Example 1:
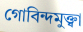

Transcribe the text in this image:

গোবিন্দমুক্ত্বা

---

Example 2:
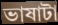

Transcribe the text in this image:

ভাষাটা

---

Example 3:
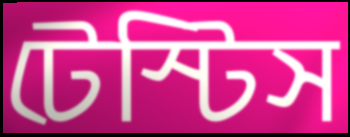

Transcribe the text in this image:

টেস্টিস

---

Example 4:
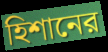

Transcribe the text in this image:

হিশানের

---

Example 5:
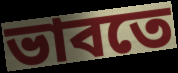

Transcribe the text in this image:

ভাবতে